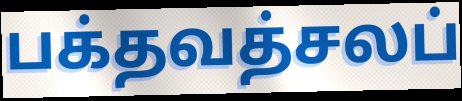
பக்தவத்சலப்